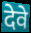
देवे